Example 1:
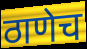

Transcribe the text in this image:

ठाणेच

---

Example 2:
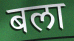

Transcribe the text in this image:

बला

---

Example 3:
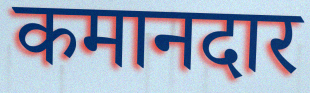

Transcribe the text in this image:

कमानदार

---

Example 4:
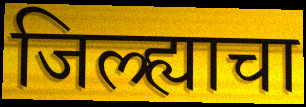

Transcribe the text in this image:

जिल्ह्याचा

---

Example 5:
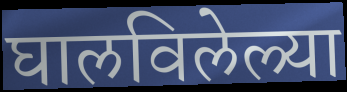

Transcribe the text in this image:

घालविलेल्या